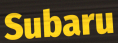
Subaru